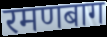
रमणबाग